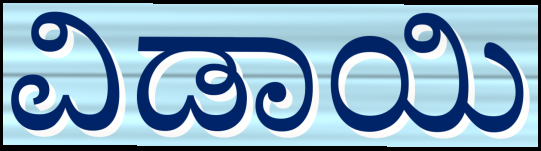
ವಿಡಾಯಿ